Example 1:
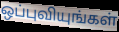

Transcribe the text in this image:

ஒப்புவியுங்கள்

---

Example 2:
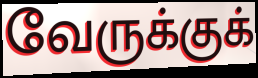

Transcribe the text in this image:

வேருக்குக்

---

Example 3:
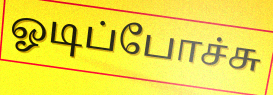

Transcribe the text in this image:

ஓடிப்போச்சு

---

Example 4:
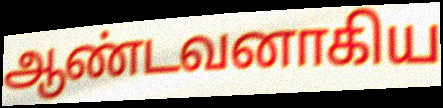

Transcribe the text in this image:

ஆண்டவனாகிய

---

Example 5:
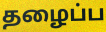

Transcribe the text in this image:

தழைப்ப